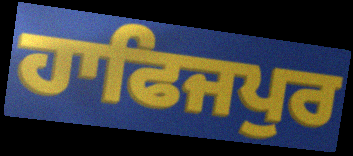
ਹਾਫਿਜਪੁਰ